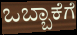
ಒಬ್ಬಾಕೆಗೆ